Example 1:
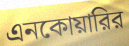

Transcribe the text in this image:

এনকোয়ারির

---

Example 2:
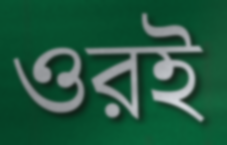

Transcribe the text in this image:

ওরই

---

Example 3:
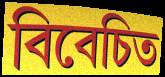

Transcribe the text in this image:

বিবেচিত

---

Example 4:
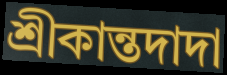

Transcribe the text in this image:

শ্রীকান্তদাদা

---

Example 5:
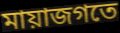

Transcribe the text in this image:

মায়াজগতে